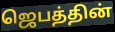
ஜெபத்தின்